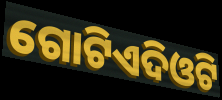
ଗୋଟିଏଦିଓଟି